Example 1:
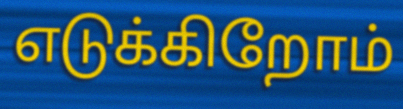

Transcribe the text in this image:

எடுக்கிறோம்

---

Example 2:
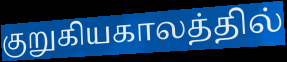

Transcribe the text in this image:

குறுகியகாலத்தில்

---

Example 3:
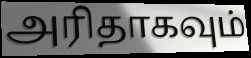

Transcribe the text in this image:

அரிதாகவும்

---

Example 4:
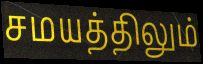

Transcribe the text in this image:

சமயத்திலும்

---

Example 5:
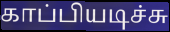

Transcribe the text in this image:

காப்பியடிச்சு